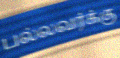
பல்லவர்க்கு